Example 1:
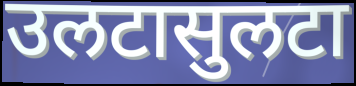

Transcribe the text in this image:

उलटासुलटा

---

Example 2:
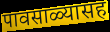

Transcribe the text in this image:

पावसाळ्यासह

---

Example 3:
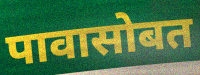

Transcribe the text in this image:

पावासोबत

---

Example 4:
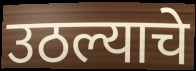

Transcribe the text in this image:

उठल्याचे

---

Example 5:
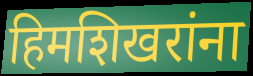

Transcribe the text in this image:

हिमशिखरांना